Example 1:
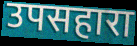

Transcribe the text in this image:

उपसहारा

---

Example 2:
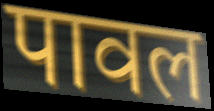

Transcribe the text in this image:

पावल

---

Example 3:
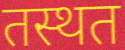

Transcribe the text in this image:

तस्थत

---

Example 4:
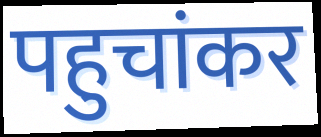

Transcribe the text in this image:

पहुचांकर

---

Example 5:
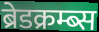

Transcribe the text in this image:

ब्रेडक्रम्ब्स